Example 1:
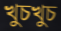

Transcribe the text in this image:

খুচখুচ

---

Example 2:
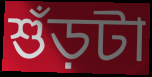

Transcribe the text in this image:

শুঁড়টা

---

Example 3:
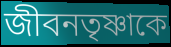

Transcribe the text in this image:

জীবনতৃষ্ণাকে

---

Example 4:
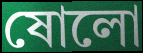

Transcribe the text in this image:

ষোলো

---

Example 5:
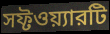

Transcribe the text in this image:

সফ্টওয়্যারটি